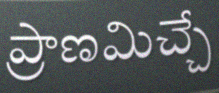
ప్రాణమిచ్చే